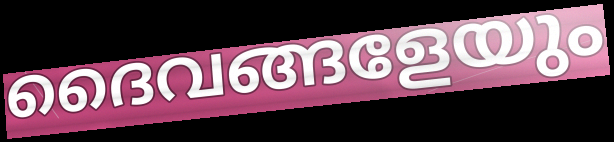
ദൈവങ്ങളേയും